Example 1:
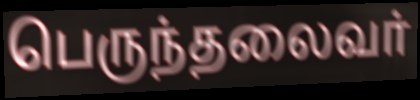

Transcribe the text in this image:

பெருந்தலைவர்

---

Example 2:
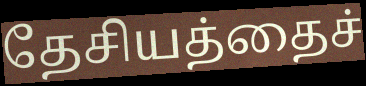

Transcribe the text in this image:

தேசியத்தைச்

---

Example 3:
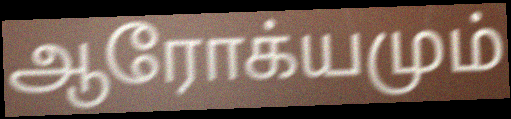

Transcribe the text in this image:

ஆரோக்யமும்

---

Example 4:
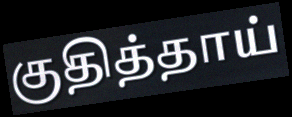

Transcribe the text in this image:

குதித்தாய்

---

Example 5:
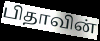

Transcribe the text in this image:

பிதாவின்